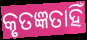
କୃତଜ୍ଞତାହିଁ